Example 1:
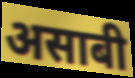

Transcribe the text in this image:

असाबी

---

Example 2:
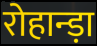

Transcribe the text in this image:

रोहान्ड़ा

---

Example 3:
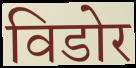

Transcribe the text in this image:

विडोर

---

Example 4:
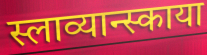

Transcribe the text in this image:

स्लाव्यान्स्काया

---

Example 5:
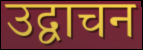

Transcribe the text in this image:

उद्वाचन